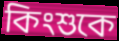
কিংশুকে